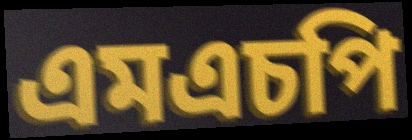
এমএচপি